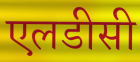
एलडीसी